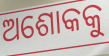
ଅଶୋକକୁ